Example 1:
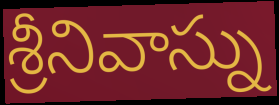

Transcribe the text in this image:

శ్రీనివాస్ను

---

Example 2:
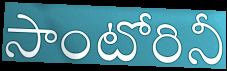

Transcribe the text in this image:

సాంటోరినీ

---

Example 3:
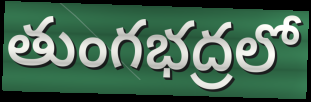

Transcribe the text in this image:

తుంగభద్రలో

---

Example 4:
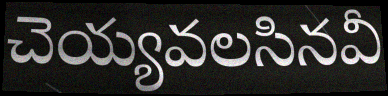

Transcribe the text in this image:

చెయ్యవలసినవీ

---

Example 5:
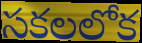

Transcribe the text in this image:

సకలలోక